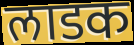
लाडक